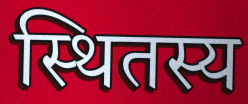
स्थितस्य